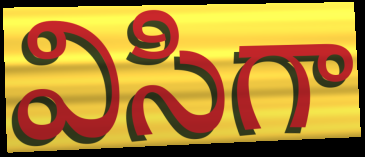
విసిగా